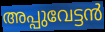
അപ്പുവേട്ടൻ